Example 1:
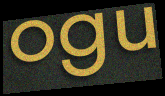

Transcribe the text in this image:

ogu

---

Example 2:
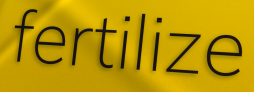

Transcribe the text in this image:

fertilize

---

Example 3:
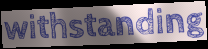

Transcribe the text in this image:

withstanding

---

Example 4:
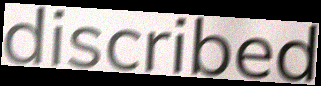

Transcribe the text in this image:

discribed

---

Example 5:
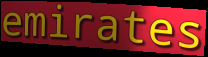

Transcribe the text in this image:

emirates